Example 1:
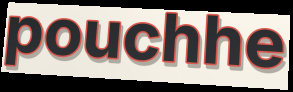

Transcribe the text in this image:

pouchhe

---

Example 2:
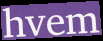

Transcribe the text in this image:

hvem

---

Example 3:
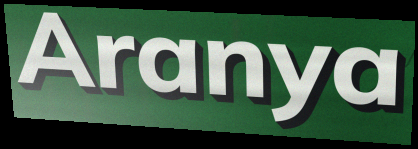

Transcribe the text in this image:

Aranya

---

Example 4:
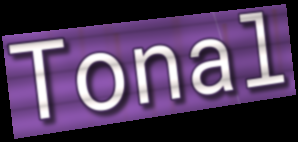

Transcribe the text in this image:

Tonal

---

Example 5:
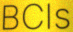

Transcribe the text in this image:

BCIs